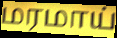
மரமாய்